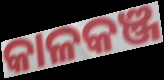
କାଳକଞ୍ଜ